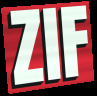
ZIF